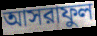
আসরাফুল